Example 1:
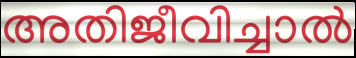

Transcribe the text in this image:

അതിജീവിച്ചാൽ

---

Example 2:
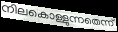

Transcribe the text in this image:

നിലകൊള്ളുന്നതെന്ന്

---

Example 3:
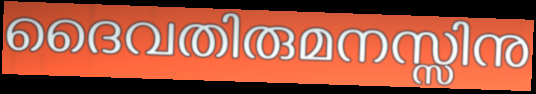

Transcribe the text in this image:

ദൈവതിരുമനസ്സിനു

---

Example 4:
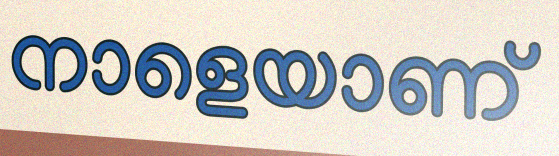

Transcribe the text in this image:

നാളെയാണ്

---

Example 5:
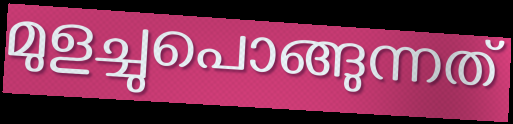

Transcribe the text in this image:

മുളച്ചുപൊങ്ങുന്നത്